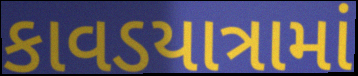
કાવડયાત્રામાં